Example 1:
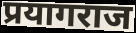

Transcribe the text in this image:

प्रयागराज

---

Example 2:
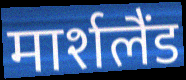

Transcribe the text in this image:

मार्शलैंड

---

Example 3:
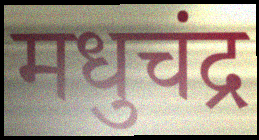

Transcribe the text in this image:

मधुचंद्र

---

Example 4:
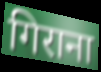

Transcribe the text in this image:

गिराना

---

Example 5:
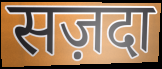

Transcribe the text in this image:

सज़दा